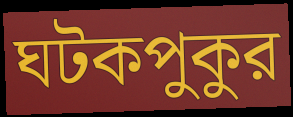
ঘটকপুকুর